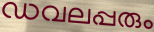
ഡവലപ്പരും